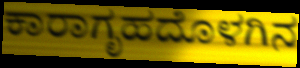
ಕಾರಾಗೃಹದೊಳಗಿನ